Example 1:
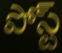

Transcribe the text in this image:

పోస్ట్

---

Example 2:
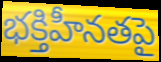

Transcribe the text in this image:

భక్తిహీనతపై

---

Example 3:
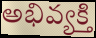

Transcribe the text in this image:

అభివ్యక్తి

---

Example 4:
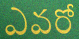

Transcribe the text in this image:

ఎవరో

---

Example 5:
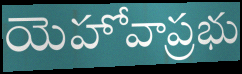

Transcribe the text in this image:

యెహోవాప్రభు